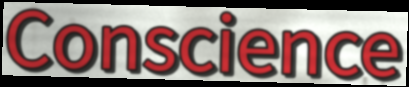
Conscience